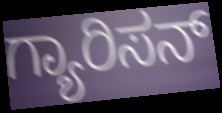
ಗ್ಯಾರಿಸನ್